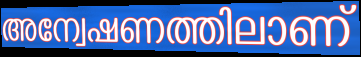
അന്വേഷണത്തിലാണ്